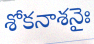
శోకనాశనైః